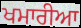
ਖਮਾਰੀਆ